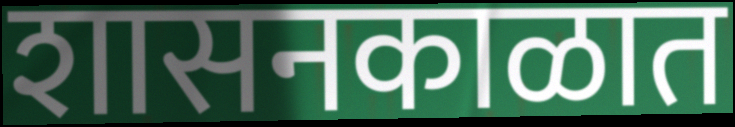
शासनकाळात